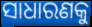
ସାଧାରଣକୁ